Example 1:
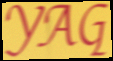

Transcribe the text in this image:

YAG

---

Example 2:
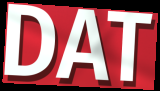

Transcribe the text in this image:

DAT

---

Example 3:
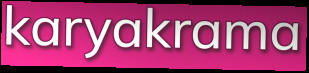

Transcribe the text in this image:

karyakrama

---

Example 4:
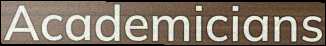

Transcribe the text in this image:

Academicians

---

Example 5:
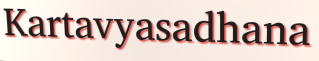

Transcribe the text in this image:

Kartavyasadhana